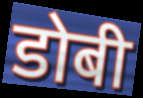
डोबी